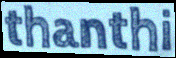
thanthi